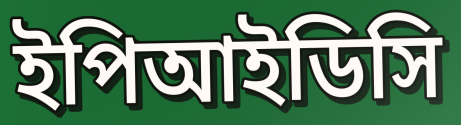
ইপিআইডিসি